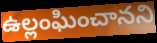
ఉల్లంఘించానని